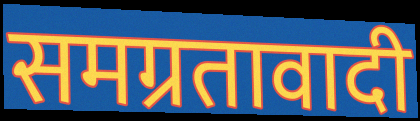
समग्रतावादी